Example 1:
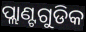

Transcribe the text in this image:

ପ୍ଲାଣ୍ଟଗୁଡିକ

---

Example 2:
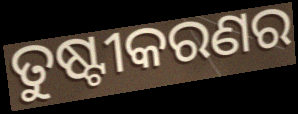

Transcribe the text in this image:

ତୁଷ୍ଟୀକରଣର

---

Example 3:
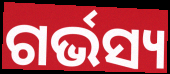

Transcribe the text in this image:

ଗର୍ଭସ୍ୟ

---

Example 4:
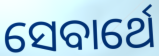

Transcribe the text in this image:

ସେବାର୍ଥେ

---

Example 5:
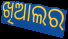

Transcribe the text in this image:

ଖିଆଲର